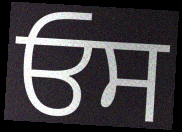
ਓਸ